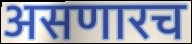
असणारच